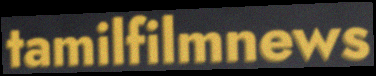
tamilfilmnews